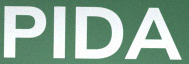
PIDA